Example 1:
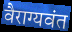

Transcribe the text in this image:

वैराग्यवंत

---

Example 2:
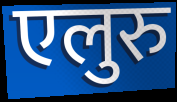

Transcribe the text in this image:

एलुरु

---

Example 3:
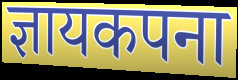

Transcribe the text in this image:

ज्ञायकपना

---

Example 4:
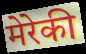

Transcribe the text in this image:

मेरेकी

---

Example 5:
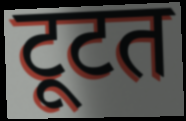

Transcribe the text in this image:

टूटत